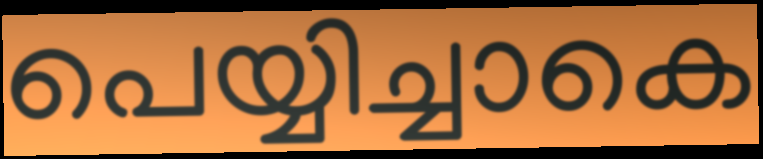
പെയ്യിച്ചാകെ